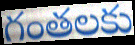
గంతలకు